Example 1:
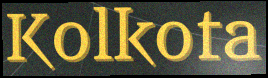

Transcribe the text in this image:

Kolkota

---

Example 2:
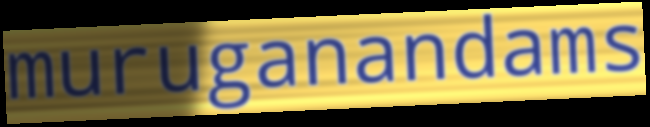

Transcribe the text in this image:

muruganandams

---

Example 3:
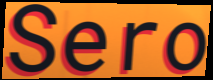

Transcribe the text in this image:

Sero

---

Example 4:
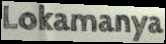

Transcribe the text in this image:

Lokamanya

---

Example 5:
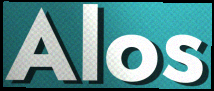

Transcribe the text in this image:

Alos